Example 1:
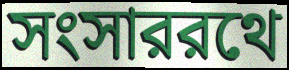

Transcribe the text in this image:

সংসাররথে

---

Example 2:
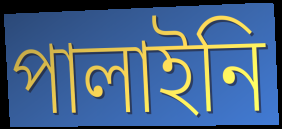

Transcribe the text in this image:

পালাইনি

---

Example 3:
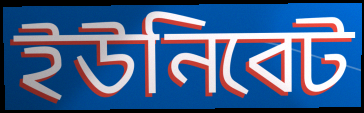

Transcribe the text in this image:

ইউনিবেট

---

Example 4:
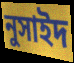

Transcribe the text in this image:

নুসাইদ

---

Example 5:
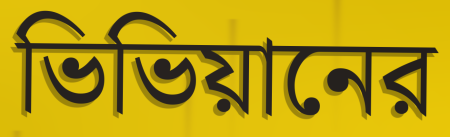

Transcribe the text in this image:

ভিভিয়ানের